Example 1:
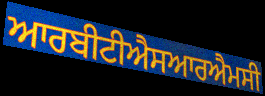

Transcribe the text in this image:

ਆਰਬੀਟੀਐਸਆਰਐਮਸੀ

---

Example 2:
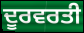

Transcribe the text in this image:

ਦੂਰਵਰਤੀ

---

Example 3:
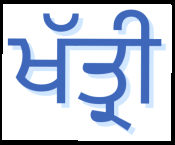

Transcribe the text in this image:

ਖੱਤ੍ਰੀ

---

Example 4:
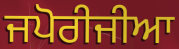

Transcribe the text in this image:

ਜਪੋਰੀਜੀਆ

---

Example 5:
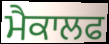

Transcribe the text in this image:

ਮੈਕਾਲਫ